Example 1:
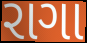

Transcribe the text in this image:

રાગા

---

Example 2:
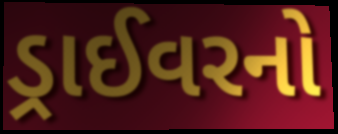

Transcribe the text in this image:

ડ્રાઈવરનો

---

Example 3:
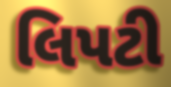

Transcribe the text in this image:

લિપટી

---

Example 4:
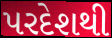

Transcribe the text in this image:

પરદેશથી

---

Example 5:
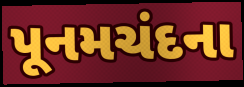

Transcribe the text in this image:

પૂનમચંદના